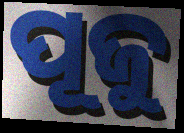
ପୂଜୁ